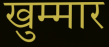
खुम्मार